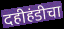
दहीहंडीचा